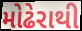
મોઢેરાથી